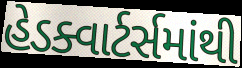
હેડક્વાર્ટર્સમાંથી